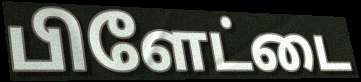
பிளேட்டை